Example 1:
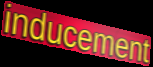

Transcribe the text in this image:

inducement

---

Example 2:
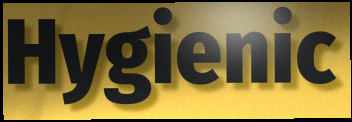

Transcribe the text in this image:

Hygienic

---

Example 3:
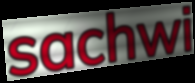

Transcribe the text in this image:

sachwi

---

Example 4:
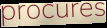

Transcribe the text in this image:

procures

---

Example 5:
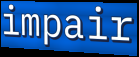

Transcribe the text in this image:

impair